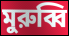
মুরুব্বি